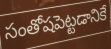
సంతోషపెట్టడానికే